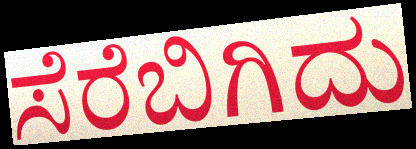
ಸೆರೆಬಿಗಿದು